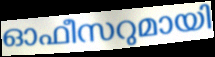
ഓഫീസറുമായി